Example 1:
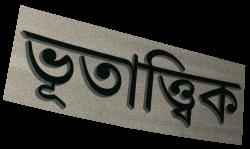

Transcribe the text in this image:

ভূতাত্ত্বিক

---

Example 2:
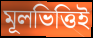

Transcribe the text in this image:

মূলভিত্তিই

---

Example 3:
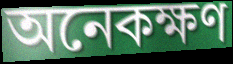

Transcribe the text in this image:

অনেকক্ষণ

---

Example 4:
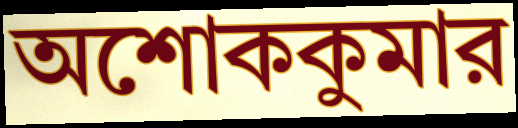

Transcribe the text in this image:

অশোককুমার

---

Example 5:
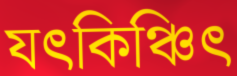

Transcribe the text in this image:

যৎকিঞ্চিৎ